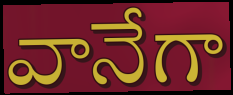
వానేగా